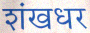
शंखधर